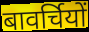
बावर्चियों